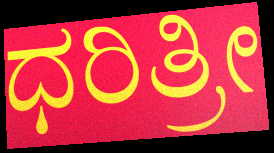
ಧರಿತ್ರೀ